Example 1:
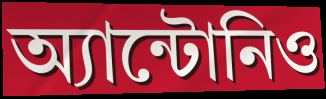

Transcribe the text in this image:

অ্যান্টোনিও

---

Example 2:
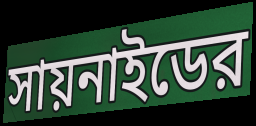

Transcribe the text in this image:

সায়নাইডের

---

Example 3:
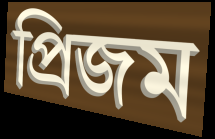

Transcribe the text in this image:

প্রিজম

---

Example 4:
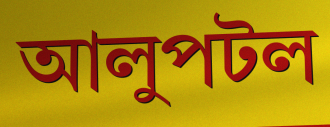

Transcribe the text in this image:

আলুপটল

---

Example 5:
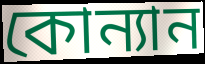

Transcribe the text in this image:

কোন্যান